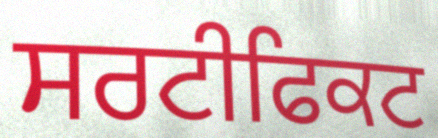
ਸਰਟੀਫਿਕਟ